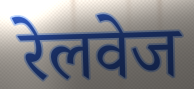
रेलवेज